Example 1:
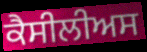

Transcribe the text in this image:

ਕੈਸੀਲੀਅਸ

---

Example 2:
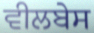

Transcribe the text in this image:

ਵੀਲਬੇਸ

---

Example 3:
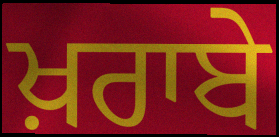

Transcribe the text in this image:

ਖ਼ਰਾਬੇ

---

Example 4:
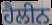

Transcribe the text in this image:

ਹੈਲੀਨ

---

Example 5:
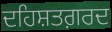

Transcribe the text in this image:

ਦਹਿਸ਼ਤਗ਼ਰਦ